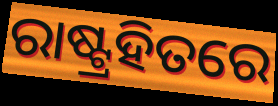
ରାଷ୍ଟ୍ରହିତରେ